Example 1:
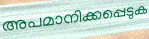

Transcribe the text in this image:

അപമാനിക്കപ്പെടുക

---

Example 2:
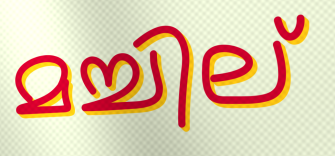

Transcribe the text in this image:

മച്ചില്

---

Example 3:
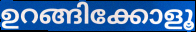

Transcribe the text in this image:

ഉറങ്ങിക്കോളൂ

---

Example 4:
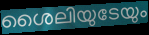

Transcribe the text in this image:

ശൈലിയുടേയും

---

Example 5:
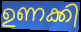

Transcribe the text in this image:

ഉണക്കി